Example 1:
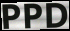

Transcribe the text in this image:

PPD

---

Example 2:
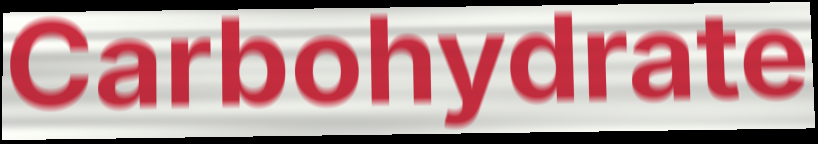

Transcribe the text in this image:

Carbohydrate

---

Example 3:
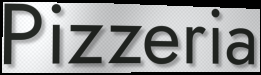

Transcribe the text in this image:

Pizzeria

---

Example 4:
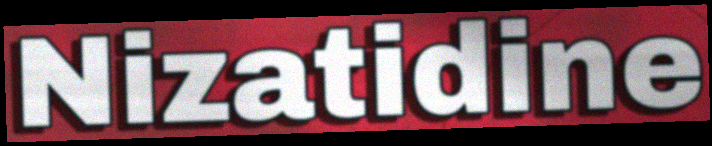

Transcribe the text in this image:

Nizatidine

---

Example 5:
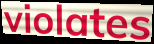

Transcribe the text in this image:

violates